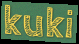
kuki